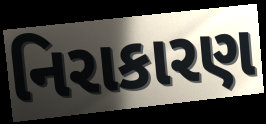
નિરાકારણ